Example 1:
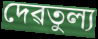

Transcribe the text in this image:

দেৱতুল্য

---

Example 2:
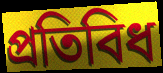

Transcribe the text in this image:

প্ৰতিবিধ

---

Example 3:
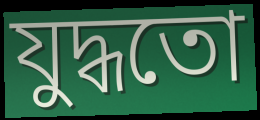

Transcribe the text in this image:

যুদ্ধতো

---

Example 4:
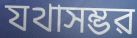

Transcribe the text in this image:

যথাসম্ভৱ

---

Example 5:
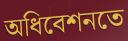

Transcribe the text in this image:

অধিবেশনতে